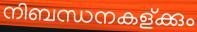
നിബന്ധനകള്ക്കും